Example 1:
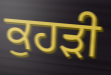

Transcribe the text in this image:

ਕੁਹੜੀ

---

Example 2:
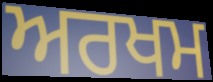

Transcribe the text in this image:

ਅਰਖਮ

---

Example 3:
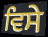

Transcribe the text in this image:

ਵਿਸੇ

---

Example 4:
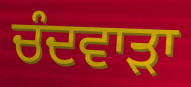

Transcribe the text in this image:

ਚੰਦਵਾੜਾ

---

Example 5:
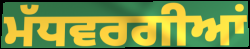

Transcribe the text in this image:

ਮੱਧਵਰਗੀਆਂ